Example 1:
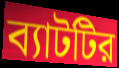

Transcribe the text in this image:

ব্যাটটির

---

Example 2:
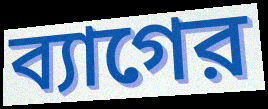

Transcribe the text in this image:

ব্যাগের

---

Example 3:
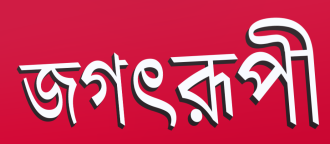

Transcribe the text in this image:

জগৎরূপী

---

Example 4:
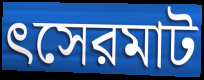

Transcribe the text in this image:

ৎসেরমাট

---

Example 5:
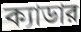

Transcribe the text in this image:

ক্যাডার